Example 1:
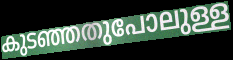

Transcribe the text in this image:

കുടഞ്ഞതുപോലുള്ള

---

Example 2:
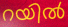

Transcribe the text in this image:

റയിൽ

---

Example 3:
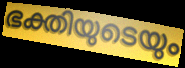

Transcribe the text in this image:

ഭക്തിയുടെയും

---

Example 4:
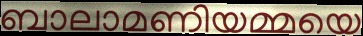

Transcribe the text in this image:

ബാലാമണിയമ്മയെ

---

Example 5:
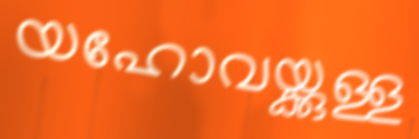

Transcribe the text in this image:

യഹോവയ്ക്കുള്ള